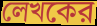
লেখকের